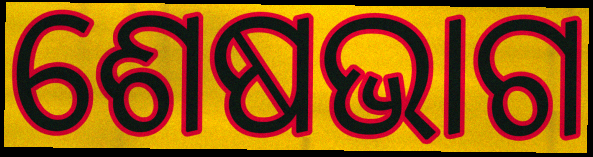
ଶେଷଭାଗ